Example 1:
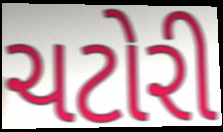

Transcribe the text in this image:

ચટોરી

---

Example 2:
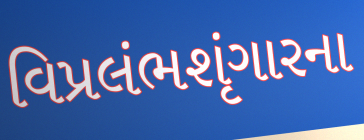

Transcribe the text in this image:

વિપ્રલંભશૃંગારના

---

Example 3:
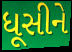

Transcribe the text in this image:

ધૂસીને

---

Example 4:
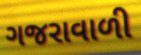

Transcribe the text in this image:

ગજરાવાળી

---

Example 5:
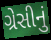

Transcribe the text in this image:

ગ્રેસીનું